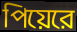
পিয়েরে